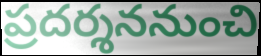
ప్రదర్శననుంచి